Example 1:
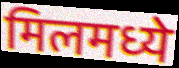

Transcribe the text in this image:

मिलमध्ये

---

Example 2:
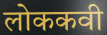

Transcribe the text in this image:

लोककवी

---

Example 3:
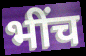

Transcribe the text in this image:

भींच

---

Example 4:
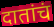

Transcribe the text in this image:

दातांचं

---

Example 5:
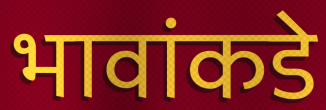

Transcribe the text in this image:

भावांकडे